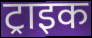
ट्राइक